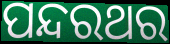
ପନ୍ଦରଥର